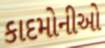
કાદમોનીઓ